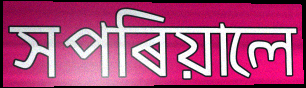
সপৰিয়ালে